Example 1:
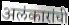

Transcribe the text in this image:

अलंकारांची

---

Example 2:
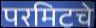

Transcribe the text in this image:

परमिटचे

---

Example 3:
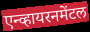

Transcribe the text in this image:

एन्व्हायरनमेंटल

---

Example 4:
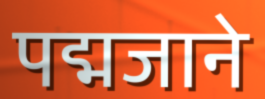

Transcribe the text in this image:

पद्मजाने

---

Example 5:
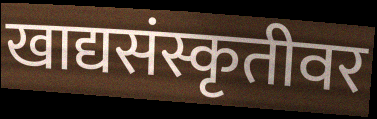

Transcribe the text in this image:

खाद्यसंस्कृतीवर